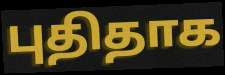
புதிதாக